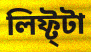
লিফ্ট্টা